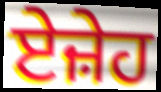
ਏਜ਼ੇਹ